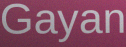
Gayan